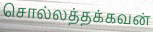
சொல்லத்தக்கவன்